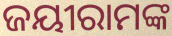
ଜୟୀରାମଙ୍କ